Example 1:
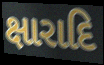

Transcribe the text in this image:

ક્ષારાદિ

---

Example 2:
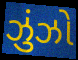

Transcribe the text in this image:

ઝુંઝો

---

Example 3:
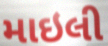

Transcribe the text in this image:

માઇલી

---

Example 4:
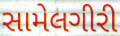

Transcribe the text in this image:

સામેલગીરી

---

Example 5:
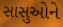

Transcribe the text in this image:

સાસુઓને